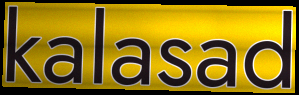
kalasad